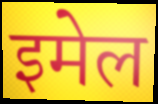
इमेल